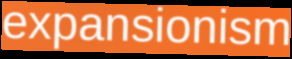
expansionism